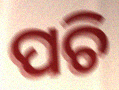
ପଚି